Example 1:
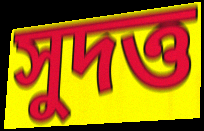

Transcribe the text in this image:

সুদত্ত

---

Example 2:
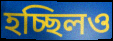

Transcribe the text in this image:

হচ্ছিলও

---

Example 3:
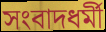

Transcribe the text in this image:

সংবাদধর্মী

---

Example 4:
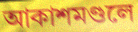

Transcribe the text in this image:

আকাশমণ্ডলে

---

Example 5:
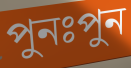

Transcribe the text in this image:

পুনঃপুন